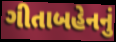
ગીતાબહેનનું